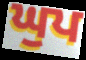
ਘੁਪ